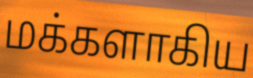
மக்களாகிய